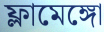
ফ্লামেঙ্গো